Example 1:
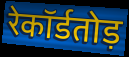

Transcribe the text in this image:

रेकॉर्डतोड़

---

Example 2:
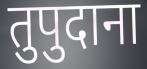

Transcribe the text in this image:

तुपुदाना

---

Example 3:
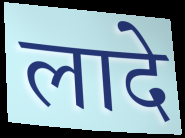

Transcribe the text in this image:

लादे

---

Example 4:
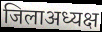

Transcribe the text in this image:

जिलाअध्यक्ष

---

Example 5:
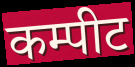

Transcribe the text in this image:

कम्पीट